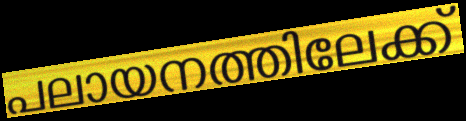
പലായനത്തിലേക്ക്